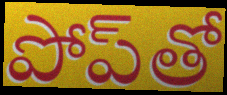
పోప్‌తో